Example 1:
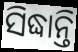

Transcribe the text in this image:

ସିଦ୍ଧାନ୍ତି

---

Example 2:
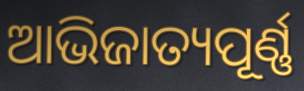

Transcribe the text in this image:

ଆଭିଜାତ୍ୟପୂର୍ଣ୍ଣ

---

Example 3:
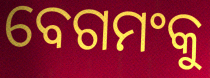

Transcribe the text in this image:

ବେଗମଂକୁ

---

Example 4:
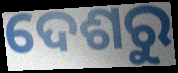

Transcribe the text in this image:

ଦେଶରୁ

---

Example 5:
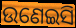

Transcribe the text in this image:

ଉଣେଇସି